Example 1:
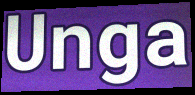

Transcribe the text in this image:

Unga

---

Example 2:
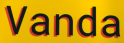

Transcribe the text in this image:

Vanda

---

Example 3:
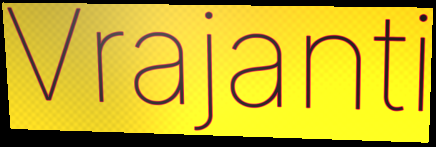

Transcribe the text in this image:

Vrajanti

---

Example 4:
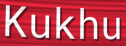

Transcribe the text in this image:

Kukhu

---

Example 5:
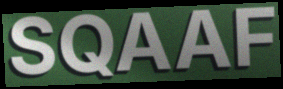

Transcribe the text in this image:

SQAAF